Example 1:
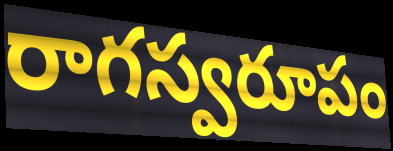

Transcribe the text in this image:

రాగస్వరూపం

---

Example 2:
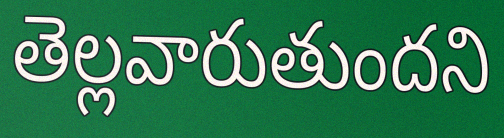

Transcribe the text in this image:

తెల్లవారుతుందని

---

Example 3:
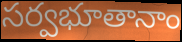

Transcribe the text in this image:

సర్వభూతానాం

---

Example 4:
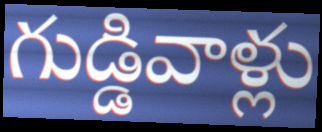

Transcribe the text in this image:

గుడ్డివాళ్లు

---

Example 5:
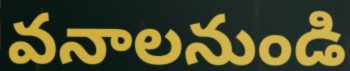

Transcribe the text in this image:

వనాలనుండి